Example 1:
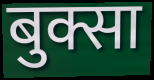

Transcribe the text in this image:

बुक्सा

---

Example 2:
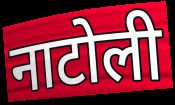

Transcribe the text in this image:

नाटोली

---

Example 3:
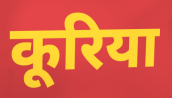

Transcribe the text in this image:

कूरिया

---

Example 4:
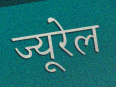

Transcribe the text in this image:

ज्यूरेल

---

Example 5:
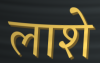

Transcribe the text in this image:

लाशे